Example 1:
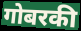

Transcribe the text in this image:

गोबरकी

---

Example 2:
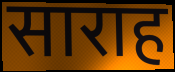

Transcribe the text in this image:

साराह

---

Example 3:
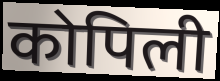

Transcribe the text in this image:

कोपिली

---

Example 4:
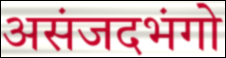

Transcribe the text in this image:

असंजदभंगो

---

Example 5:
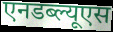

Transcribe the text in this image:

एनडब्ल्यूएस